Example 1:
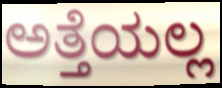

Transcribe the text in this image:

ಅತ್ತೆಯಲ್ಲ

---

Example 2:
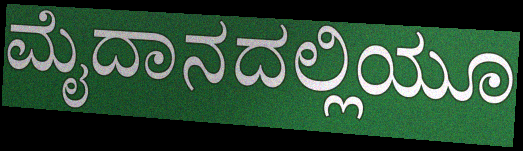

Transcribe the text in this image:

ಮೈದಾನದಲ್ಲಿಯೂ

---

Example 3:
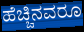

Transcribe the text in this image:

ಹೆಚ್ಚಿನವರೂ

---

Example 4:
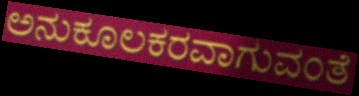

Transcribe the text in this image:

ಅನುಕೂಲಕರವಾಗುವಂತೆ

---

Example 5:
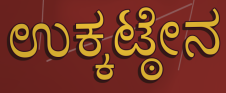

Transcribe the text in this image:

ಉಕ್ಕಟ್ಠೇನ